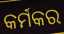
କର୍ମକର